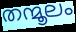
തന്മൂലം